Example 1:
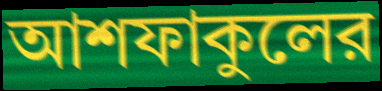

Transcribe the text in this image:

আশফাকুলের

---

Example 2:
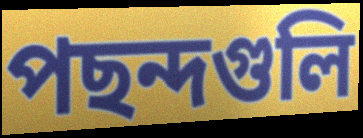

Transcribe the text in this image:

পছন্দগুলি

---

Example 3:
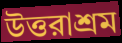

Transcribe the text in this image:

উত্তরাশ্রম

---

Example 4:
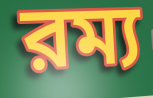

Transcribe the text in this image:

রম্য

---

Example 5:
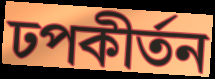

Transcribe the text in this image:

ঢপকীর্তন